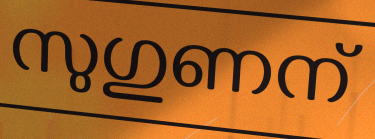
സുഗുണന്